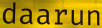
daarun